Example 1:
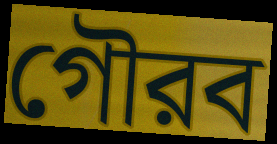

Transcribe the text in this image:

গৌরব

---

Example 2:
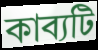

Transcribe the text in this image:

কাব্যটি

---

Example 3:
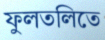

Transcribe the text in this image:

ফুলতলিতে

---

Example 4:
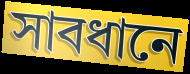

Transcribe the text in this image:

সাবধানে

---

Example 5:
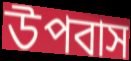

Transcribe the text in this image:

উপবাস